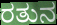
ರತುನ